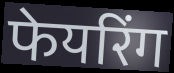
फेयरिंग